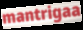
mantrigaa